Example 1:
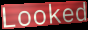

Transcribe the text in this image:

Looked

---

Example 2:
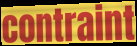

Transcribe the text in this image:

contraint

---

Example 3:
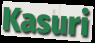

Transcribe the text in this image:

Kasuri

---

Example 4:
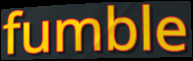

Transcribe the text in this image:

fumble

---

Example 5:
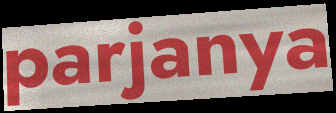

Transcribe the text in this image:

parjanya